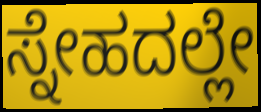
ಸ್ನೇಹದಲ್ಲೇ